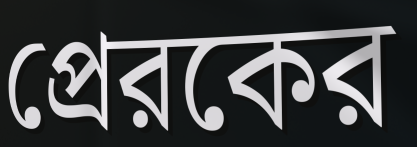
প্রেরকের